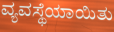
ವ್ಯವಸ್ಥೆಯಾಯಿತು